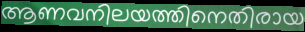
ആണവനിലയത്തിനെതിരായ